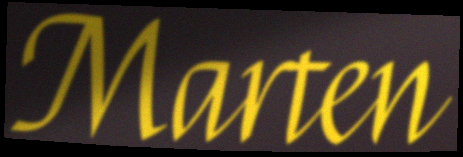
Marten